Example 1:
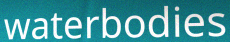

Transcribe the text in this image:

waterbodies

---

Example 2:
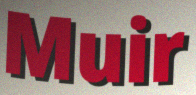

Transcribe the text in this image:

Muir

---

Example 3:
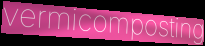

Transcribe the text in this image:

vermicomposting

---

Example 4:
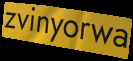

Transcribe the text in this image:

zvinyorwa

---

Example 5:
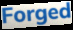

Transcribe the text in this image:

Forged